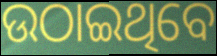
ଉଠାଇଥିବେ